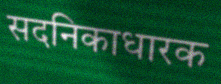
सदनिकाधारक